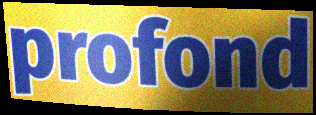
profond